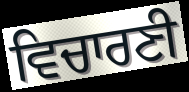
ਵਿਚਾਰਣੀ